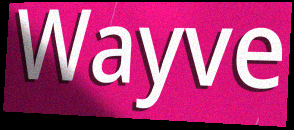
Wayve